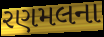
રણમલના